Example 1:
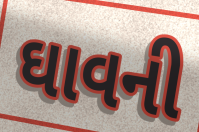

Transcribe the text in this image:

ઘાવની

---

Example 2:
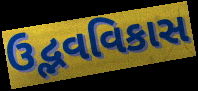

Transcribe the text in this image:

ઉદ્ભવવિકાસ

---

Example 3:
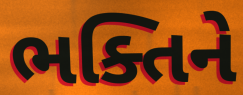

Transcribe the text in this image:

ભક્તિને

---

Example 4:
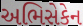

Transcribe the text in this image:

અભિસેકેન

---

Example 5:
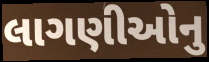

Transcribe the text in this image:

લાગણીઓનુ